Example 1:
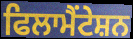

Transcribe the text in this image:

ਫਿਲਾਮੈਂਟੇਸ਼ਨ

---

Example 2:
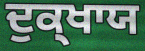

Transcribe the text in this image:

ਦੁਕ੍ਖਾਯ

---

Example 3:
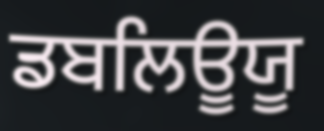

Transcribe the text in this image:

ਡਬਲਿਊਯੂ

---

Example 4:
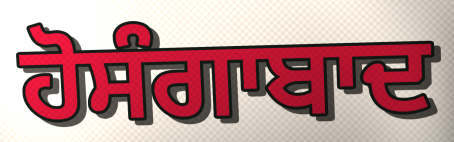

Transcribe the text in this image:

ਹੋਸੰਗਾਬਾਦ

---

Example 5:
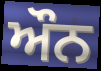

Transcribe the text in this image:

ਔਨ